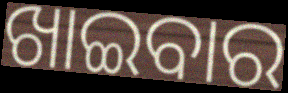
ଖାଇବାର